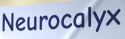
Neurocalyx